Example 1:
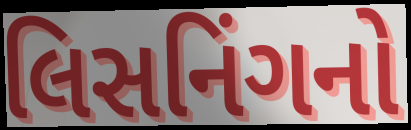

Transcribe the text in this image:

લિસનિંગનો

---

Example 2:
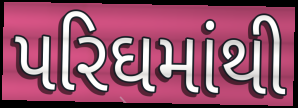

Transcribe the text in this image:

પરિઘમાંથી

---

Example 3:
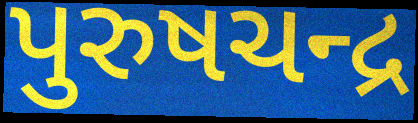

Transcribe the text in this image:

પુરુષચન્દ્ર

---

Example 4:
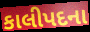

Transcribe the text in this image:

કાલીપદના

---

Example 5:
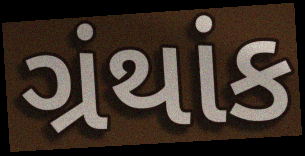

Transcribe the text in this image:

ગ્રંથાંક